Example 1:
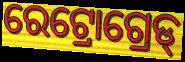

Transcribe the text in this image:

ରେଟ୍ରୋଗ୍ରେଡ୍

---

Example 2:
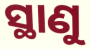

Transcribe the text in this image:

ସ୍ଥାଣୁ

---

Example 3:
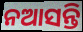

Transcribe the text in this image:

ନଆସନ୍ତି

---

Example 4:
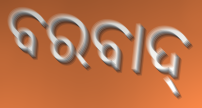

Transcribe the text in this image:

ବରବାଦ୍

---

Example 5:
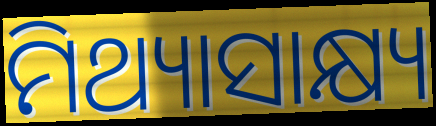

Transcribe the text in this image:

ମିଥ୍ୟାସାକ୍ଷ୍ୟ